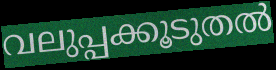
വലുപ്പക്കൂടുതൽ